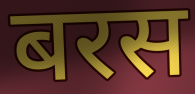
बरस